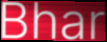
Bhar